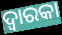
ଦ୍ୱାରକା